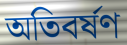
অতিবর্ষণ